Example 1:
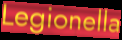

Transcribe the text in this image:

Legionella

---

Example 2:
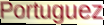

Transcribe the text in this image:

Portuguez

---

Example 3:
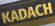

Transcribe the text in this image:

KADACH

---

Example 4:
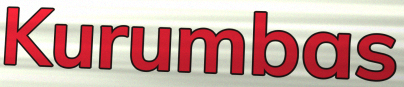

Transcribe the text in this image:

Kurumbas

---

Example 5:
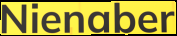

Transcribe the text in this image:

Nienaber